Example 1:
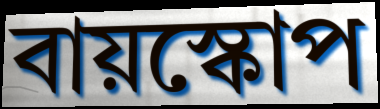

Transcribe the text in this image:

বায়স্কোপ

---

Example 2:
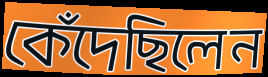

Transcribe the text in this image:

কেঁদেছিলেন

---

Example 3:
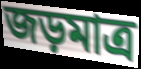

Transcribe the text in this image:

জড়মাত্র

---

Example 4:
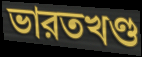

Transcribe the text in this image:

ভারতখণ্ড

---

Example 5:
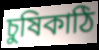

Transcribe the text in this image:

চুষিকাঠি